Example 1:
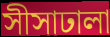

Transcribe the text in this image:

সীসাঢালা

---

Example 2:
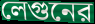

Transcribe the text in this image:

লেগুনের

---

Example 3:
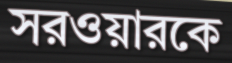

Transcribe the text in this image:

সরওয়ারকে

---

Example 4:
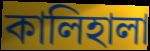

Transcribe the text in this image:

কালিহালা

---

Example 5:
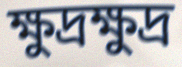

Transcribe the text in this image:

ক্ষুদ্রক্ষুদ্র